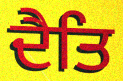
ਦੈਤਿ